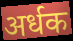
अर्धक